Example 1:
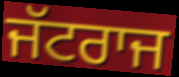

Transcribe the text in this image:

ਜੱਟਰਾਜ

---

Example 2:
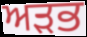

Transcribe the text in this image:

ਅੜਭ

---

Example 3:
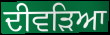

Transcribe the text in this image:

ਦੀਵੜਿਆ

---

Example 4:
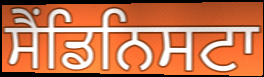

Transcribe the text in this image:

ਸੈਂਡਿਨਿਸਟਾ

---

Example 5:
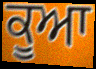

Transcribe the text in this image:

ਕੂਆ